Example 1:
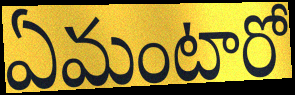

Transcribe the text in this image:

ఏమంటారో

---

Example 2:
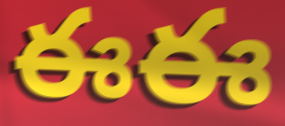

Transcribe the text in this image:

ఈఈ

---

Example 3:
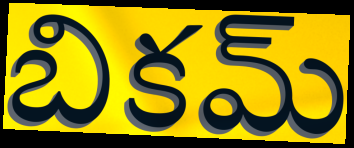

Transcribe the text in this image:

బికమ్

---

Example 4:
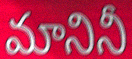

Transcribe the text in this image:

మానినీ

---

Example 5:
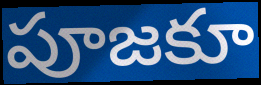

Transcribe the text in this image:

పూజకూ